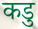
कडु